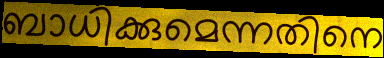
ബാധിക്കുമെന്നതിനെ